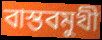
বাস্তবমুখী